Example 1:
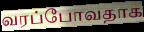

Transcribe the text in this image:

வரப்போவதாக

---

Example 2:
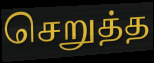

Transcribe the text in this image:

செறுத்த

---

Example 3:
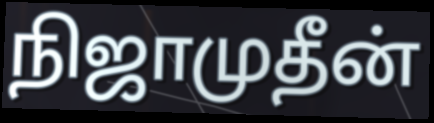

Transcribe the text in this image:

நிஜாமுதீன்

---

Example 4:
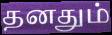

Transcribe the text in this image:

தனதும்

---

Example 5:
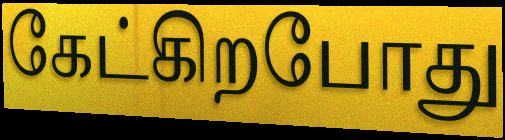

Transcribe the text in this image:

கேட்கிறபோது